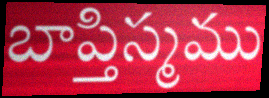
బాప్తిస్మము